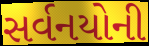
સર્વનયોની